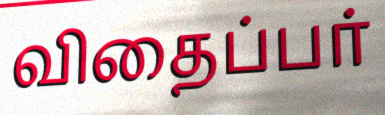
விதைப்பர்